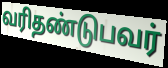
வரிதண்டுபவர்